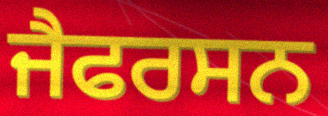
ਜੈਫਰਸਨ